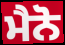
ਮੈਨੋ